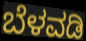
ಬೆಳವಡಿ